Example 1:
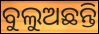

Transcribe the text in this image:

ବୁଲୁଅଛନ୍ତି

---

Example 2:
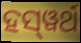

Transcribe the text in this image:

ହସ୍‌ୱର୍ଥ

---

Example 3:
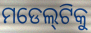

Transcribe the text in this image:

ମଡେଲ୍‌ଟିକୁ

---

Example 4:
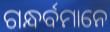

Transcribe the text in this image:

ଗନ୍ଧର୍ବମାନେ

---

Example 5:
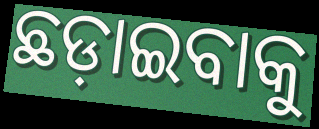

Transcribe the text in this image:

ଛଡ଼ାଇବାକୁ